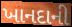
ખાનદાની